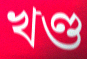
খণ্ড